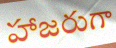
హాజరుగా